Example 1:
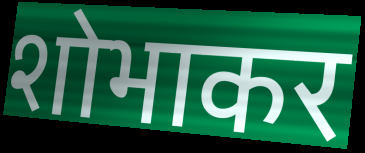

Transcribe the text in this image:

शोभाकर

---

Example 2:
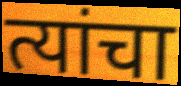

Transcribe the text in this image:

त्यांचा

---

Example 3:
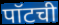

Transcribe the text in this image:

पॉटची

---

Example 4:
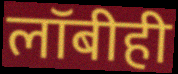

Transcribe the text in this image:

लॉबीही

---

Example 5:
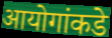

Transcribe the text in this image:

आयोगांकडे